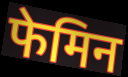
फेमिन